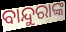
ବାନ୍ଦୁରାଙ୍କ